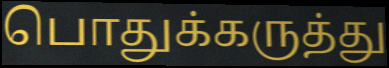
பொதுக்கருத்து